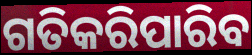
ଗତିକରିପାରିବ